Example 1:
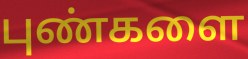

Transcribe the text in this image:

புண்களை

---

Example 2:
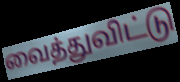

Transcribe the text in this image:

வைத்துவிட்டு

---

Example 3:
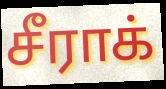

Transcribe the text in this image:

சீராக்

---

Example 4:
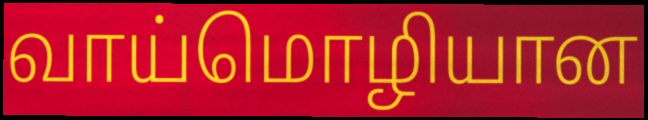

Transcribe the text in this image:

வாய்மொழியான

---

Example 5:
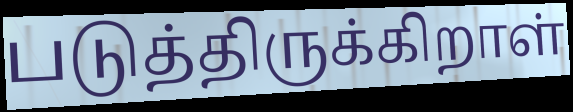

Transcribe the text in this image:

படுத்திருக்கிறாள்